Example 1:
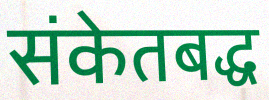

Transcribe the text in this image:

संकेतबद्ध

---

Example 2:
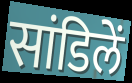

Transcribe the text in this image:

सांडिलें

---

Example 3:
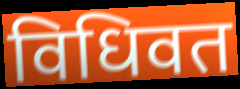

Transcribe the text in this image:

विधिवत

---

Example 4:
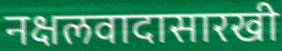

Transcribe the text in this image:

नक्षलवादासारखी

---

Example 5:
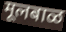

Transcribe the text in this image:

मूलबाळ